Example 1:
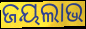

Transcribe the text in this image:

ଜୟଲାଭ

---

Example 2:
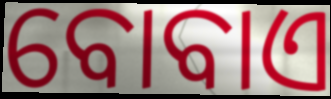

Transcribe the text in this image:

ବୋବାଏ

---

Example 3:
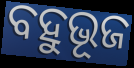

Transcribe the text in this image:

ବହୁଭୂଜ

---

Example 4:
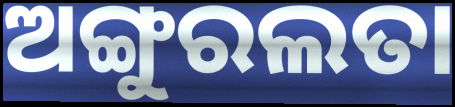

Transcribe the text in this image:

ଅଙ୍ଗୁରଲତା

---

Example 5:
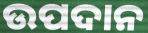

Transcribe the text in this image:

ଉପଦାନ